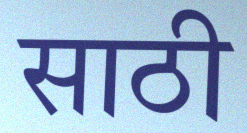
साठी